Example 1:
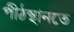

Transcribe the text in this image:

পীঠস্থানতে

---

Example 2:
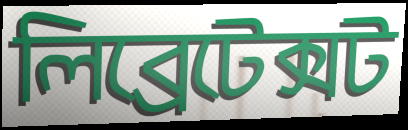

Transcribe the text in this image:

লিব্ৰেটেক্সট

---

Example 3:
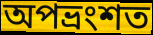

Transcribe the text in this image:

অপভ্ৰংশত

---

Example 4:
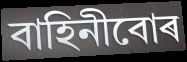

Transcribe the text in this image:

বাহিনীবোৰ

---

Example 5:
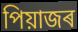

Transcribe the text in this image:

পিয়াজৰ